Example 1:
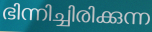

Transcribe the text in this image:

ഭിന്നിച്ചിരിക്കുന്ന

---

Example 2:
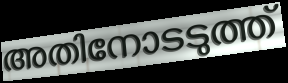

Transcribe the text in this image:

അതിനോടടുത്ത്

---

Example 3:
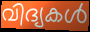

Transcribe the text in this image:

വിദ്യകൾ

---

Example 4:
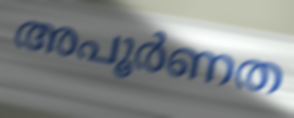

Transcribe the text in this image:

അപൂർണത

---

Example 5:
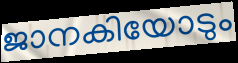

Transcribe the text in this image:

ജാനകിയോടും